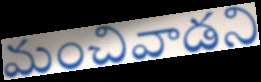
మంచివాడని